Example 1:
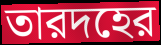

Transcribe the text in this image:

তারদহের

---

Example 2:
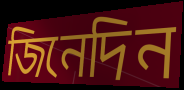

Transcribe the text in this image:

জিনেদিন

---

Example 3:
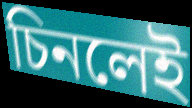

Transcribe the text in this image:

চিনলেই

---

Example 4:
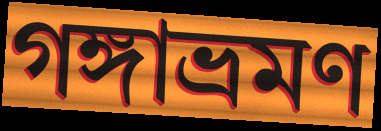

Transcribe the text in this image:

গঙ্গাভ্রমণ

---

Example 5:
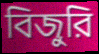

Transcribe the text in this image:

বিজুরি